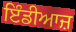
ਇੰਡੀਆਜ਼